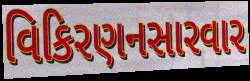
વિકિરણનસારવાર